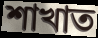
শাখাত